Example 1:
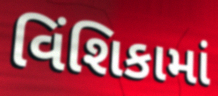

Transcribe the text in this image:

વિંશિકામાં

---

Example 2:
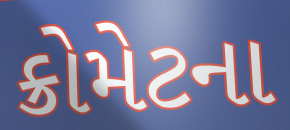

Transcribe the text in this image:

ક્રોમેટના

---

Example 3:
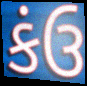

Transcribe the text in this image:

કંઉ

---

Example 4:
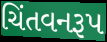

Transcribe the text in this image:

ચિંતવનરૂપ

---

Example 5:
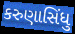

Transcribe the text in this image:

કરુણાસિંધુ